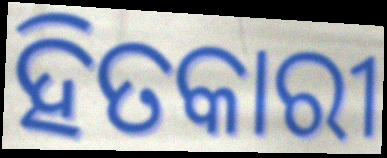
ହିତକାରୀ